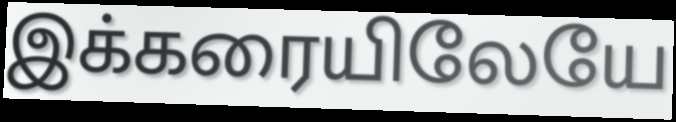
இக்கரையிலேயே